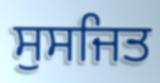
ਸੁਸਜਿਤ